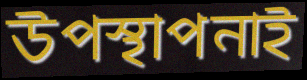
উপস্থাপনাই